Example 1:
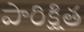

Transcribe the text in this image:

పారిక్షిత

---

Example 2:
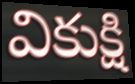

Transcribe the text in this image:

వికుక్షి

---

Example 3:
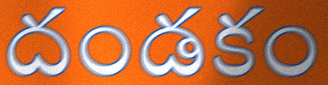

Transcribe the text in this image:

దండకం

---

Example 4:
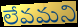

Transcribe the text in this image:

లేవమని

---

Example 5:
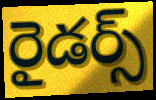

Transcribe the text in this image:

రైడర్స్